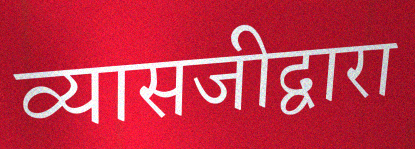
व्यासजीद्वारा